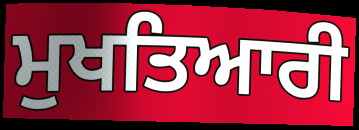
ਮੁਖਤਿਆਰੀ